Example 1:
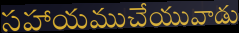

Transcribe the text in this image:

సహాయముచేయువాడు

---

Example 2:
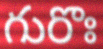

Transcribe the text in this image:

గురొః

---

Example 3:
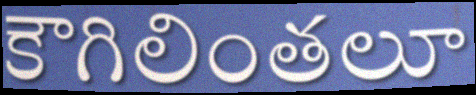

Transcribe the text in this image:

కౌగిలింతలూ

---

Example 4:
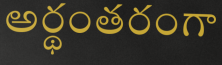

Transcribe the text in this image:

అర్థంతరంగా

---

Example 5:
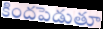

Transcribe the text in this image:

కిందపెడుతూ